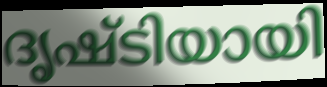
ദൃഷ്ടിയായി